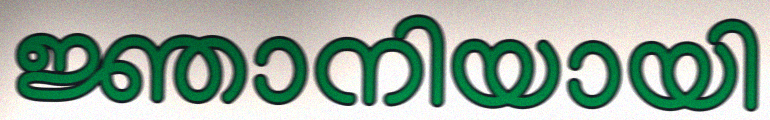
ജ്ഞാനിയായി